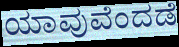
ಯಾವುವೆಂದಡೆ